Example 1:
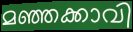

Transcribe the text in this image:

മഞ്ഞക്കാവി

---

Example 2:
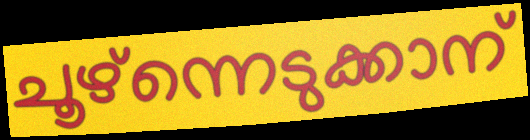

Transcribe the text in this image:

ചൂഴ്ന്നെടുക്കാന്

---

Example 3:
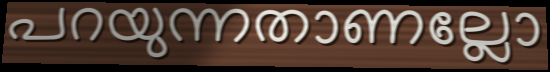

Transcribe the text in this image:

പറയുന്നതാണല്ലോ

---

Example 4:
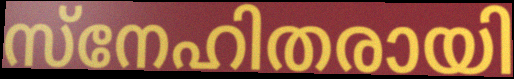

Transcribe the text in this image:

സ്നേഹിതരായി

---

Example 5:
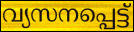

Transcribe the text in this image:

വ്യസനപ്പെട്ട്